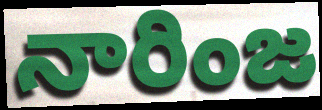
నారింజ